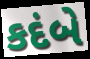
કદંબે